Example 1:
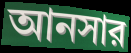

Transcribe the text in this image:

আনসার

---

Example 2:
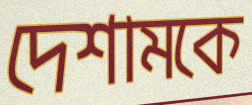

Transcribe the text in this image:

দেশামকে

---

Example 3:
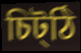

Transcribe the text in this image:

চিট্ঠি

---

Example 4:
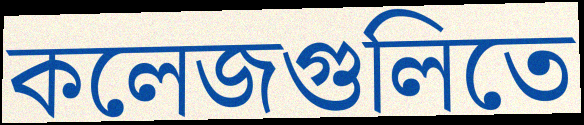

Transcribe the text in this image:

কলেজগুলিতে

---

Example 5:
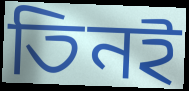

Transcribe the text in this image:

তিনই